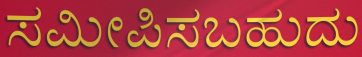
ಸಮೀಪಿಸಬಹುದು